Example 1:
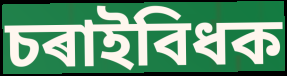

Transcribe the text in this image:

চৰাইবিধক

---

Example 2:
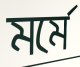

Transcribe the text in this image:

মৰ্মে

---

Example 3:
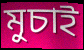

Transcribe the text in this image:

মুচাই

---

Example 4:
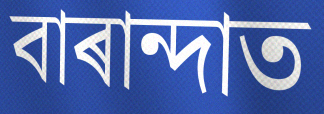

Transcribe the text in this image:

বাৰান্দাত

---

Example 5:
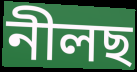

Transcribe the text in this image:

নীলছ